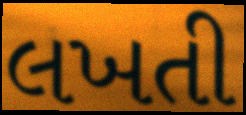
લખતી